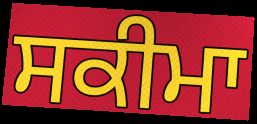
ਸਕੀਮਾ